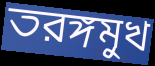
তরঙ্গমুখ